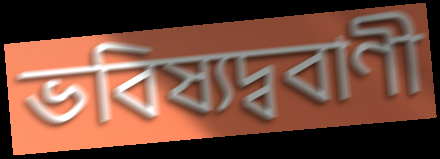
ভবিষ্যদ্ববাণী